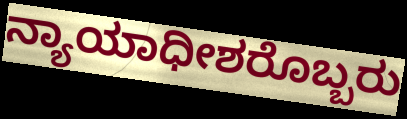
ನ್ಯಾಯಾಧೀಶರೊಬ್ಬರು